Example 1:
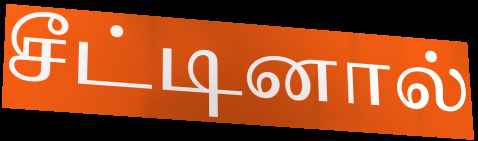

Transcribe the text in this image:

சீட்டினால்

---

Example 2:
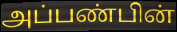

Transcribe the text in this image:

அப்பண்பின்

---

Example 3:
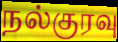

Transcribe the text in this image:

நல்குரவு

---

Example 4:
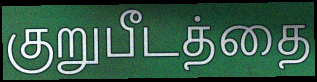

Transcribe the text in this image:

குறுபீடத்தை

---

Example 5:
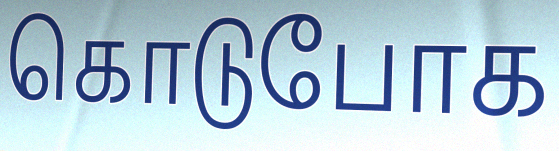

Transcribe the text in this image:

கொடுபோக